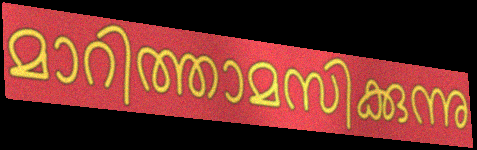
മാറിത്താമസിക്കുന്നു